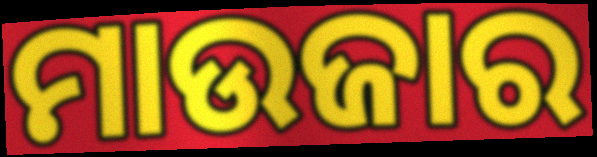
ମାଉଜାର